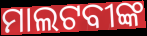
ମାଲଟବୀଙ୍କ